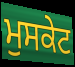
ਮੁਸਕੇਟ